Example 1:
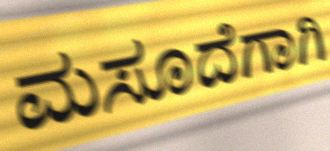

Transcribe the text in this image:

ಮಸೂದೆಗಾಗಿ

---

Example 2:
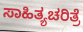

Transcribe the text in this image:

ಸಾಹಿತ್ಯಚರಿತ್ರೆ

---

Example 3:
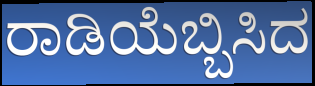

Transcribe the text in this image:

ರಾಡಿಯೆಬ್ಬಿಸಿದ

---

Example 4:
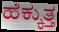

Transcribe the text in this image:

ಹೆಕ್ಕುತ್ತ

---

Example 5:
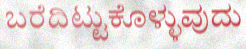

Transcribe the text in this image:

ಬರೆದಿಟ್ಟುಕೊಳ್ಳುವುದು